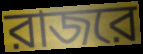
রাজরে